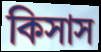
কিসাস